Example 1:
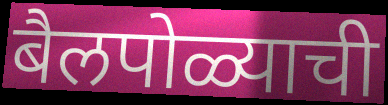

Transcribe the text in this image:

बैलपोळ्याची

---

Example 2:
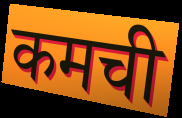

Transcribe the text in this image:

कमची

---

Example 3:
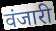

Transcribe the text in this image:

वंजारी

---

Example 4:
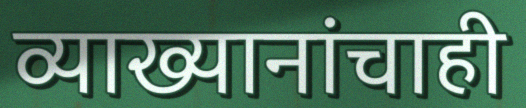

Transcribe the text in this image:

व्याख्यानांचाही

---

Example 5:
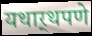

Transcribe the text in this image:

यथार्थपणे